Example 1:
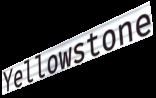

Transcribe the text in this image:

Yellowstone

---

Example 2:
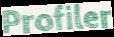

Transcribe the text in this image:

Profiler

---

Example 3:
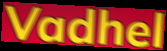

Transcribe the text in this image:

Vadhel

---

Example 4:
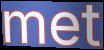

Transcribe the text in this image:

met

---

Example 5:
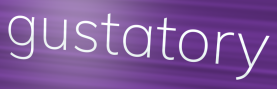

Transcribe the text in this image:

gustatory